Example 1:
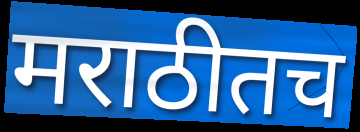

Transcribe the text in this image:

मराठीतच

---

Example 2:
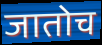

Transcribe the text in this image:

जातोच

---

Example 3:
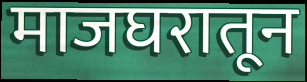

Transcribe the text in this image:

माजघरातून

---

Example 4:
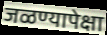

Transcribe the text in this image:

जळण्यापेक्षा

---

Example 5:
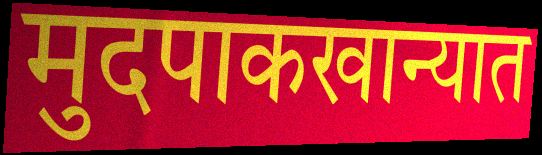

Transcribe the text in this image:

मुदपाकखान्यात